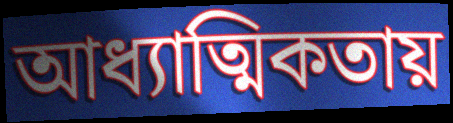
আধ্যাত্মিকতায়